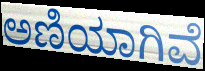
ಅಣಿಯಾಗಿವೆ